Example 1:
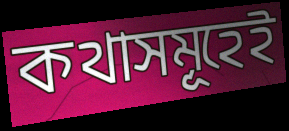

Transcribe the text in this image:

কথাসমূহেই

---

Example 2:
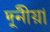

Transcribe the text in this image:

দুনীয়া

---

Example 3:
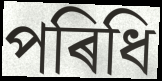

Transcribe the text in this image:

পৰিধি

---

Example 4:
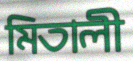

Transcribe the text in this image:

মিতালী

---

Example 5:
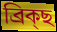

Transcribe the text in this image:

ব্ৰিক্ছ